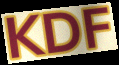
KDF